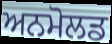
ਅਨਮੋਲਡ